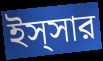
ইস্সার